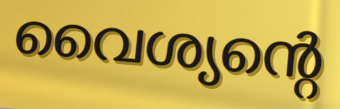
വൈശ്യന്റെ